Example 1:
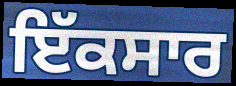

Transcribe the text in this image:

ਇੱਕਸਾਰ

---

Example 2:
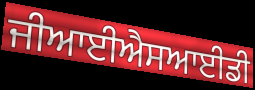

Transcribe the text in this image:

ਜੀਆਈਐਸਆਈਡੀ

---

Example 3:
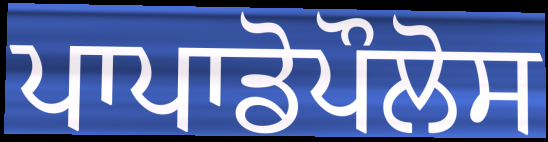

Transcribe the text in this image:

ਪਾਪਾਡੋਪੌਲੋਸ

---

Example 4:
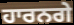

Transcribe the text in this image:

ਹਾਰਨਗੇ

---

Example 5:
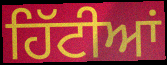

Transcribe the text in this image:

ਹਿੱਟੀਆਂ